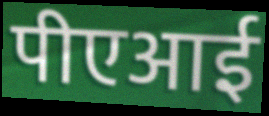
पीएआई